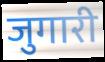
जुगारी